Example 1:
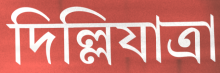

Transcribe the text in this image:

দিল্লিযাত্রা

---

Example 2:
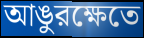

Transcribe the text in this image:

আঙুরক্ষেতে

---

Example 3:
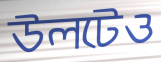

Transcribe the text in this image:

উলটেও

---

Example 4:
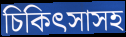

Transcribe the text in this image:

চিকিৎসাসহ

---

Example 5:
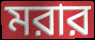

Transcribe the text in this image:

মরার